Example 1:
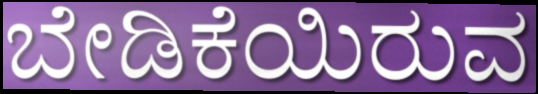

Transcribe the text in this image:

ಬೇಡಿಕೆಯಿರುವ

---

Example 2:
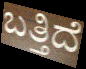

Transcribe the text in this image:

ಬತ್ತಿದೆ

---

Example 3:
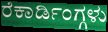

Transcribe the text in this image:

ರೆಕಾರ್ಡಿಂಗ್ಗಳು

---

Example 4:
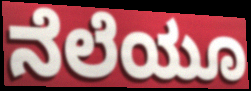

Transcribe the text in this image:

ನೆಲೆಯೂ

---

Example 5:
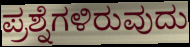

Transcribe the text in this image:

ಪ್ರಶ್ನೆಗಳಿರುವುದು